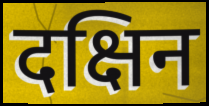
दक्षिन